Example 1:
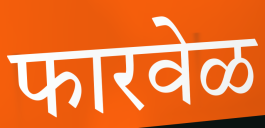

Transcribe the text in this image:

फारवेळ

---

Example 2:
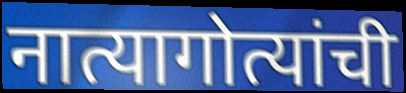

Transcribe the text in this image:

नात्यागोत्यांची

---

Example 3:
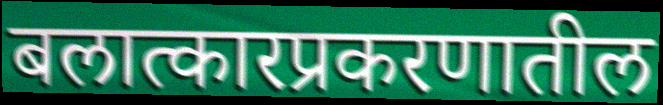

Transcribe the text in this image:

बलात्कारप्रकरणातील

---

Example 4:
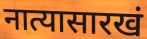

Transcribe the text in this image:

नात्यासारखं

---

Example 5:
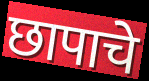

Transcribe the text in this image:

छापाचे